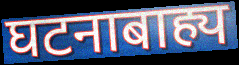
घटनाबाह्य